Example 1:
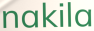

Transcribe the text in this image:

nakila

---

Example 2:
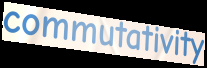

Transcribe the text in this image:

commutativity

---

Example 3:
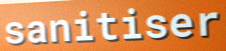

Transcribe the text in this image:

sanitiser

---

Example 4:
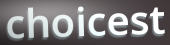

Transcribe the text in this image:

choicest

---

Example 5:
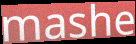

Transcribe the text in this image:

mashe